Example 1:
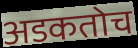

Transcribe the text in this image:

अडकतोच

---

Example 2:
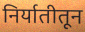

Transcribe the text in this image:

निर्यातीतून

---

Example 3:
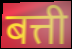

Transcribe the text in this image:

बत्ती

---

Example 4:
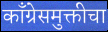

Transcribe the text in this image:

काँग्रेसमुक्तीचा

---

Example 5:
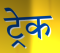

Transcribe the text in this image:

ट्रेक